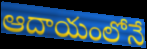
ఆదాయంలోనే